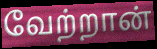
வேற்றான்